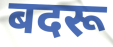
बदरू